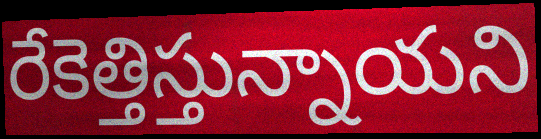
రేకెత్తిస్తున్నాయని